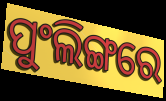
ପୁଂଲିଙ୍ଗରେ